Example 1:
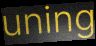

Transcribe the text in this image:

uning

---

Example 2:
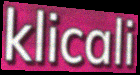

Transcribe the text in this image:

klicali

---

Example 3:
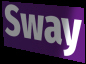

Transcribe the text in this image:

Sway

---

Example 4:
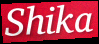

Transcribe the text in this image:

Shika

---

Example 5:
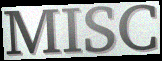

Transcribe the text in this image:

MISC